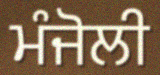
ਮੰਜੋਲੀ